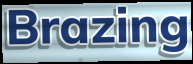
Brazing